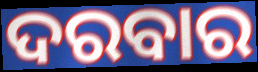
ଦରବାର